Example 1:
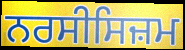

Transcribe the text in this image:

ਨਰਸੀਸਿਜ਼ਮ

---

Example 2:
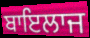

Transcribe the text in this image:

ਬਾਇਲਾਜ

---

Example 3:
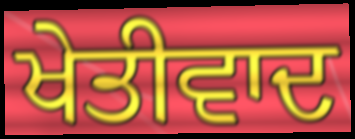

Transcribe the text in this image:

ਖੇਤੀਵਾਦ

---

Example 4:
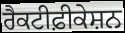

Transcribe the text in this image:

ਰੈਕਟੀਫ਼ੀਕੇਸ਼ਨ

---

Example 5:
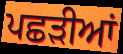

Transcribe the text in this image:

ਪਛੜੀਆਂ